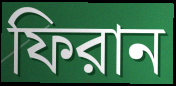
ফিরান